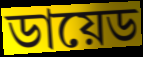
ডায়েড